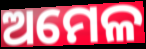
ଅମେଳ